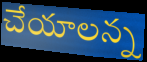
చేయాలన్న